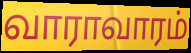
வாராவாரம்